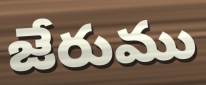
జేరుము